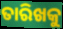
ତାରିଖକୁ